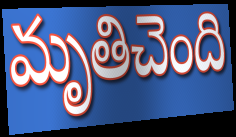
మృతిచెంది